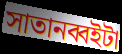
সাতানব্বইটা